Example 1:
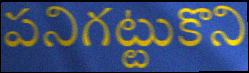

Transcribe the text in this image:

పనిగట్టుకొని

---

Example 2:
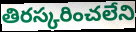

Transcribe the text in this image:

తిరస్కరించలేని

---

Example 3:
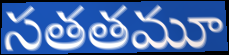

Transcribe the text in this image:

సతతమూ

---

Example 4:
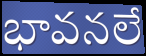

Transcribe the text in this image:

భావనలే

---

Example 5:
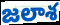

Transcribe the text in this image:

జలాశ